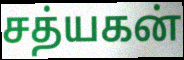
சத்யகன்